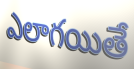
ఎలాగయితే